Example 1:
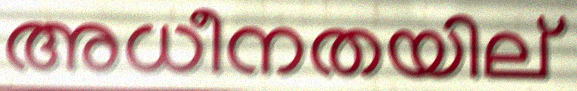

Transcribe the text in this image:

അധീനതയില്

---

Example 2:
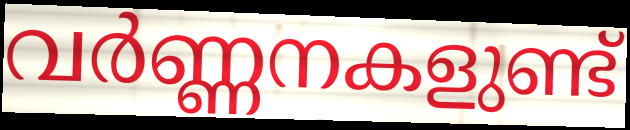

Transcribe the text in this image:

വർണ്ണനകളുണ്ട്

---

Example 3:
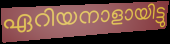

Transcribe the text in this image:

ഏറിയനാളായിട്ടു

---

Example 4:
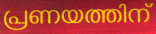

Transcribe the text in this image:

പ്രണയത്തിന്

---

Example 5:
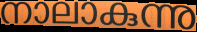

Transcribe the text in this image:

നാലാകുന്നു